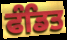
ਫੰਡਿਤ